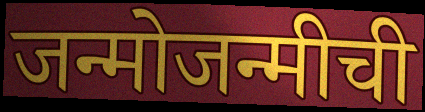
जन्मोजन्मीची